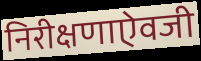
निरीक्षणाऐवजी